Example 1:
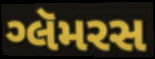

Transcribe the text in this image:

ગ્લૅમરસ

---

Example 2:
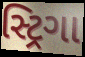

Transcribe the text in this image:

સ્ટ્રિગા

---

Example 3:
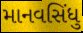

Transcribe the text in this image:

માનવસિંધુ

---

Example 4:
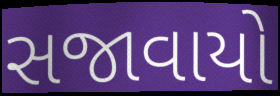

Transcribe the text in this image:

સજાવાયો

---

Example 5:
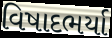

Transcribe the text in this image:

વિષાદભર્યા